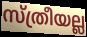
സ്ത്രീയല്ല